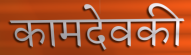
कामदेवकी